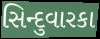
સિન્દુવારકા